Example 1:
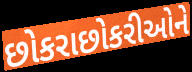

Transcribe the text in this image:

છોકરાછોકરીઓને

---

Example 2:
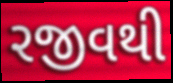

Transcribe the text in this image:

રજીવથી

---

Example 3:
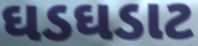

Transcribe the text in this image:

ઘડઘડાટ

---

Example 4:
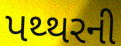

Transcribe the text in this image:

પથ્થરની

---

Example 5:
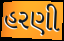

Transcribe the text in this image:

હરણી